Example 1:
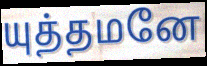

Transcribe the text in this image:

யுத்தமனே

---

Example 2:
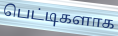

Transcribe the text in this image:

பெட்டிகளாக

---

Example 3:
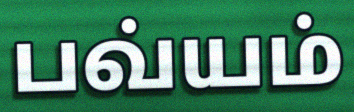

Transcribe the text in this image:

பவ்யம்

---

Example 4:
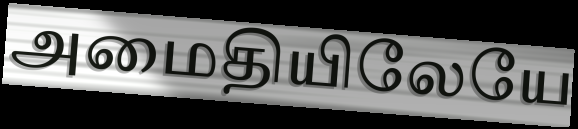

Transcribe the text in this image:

அமைதியிலேயே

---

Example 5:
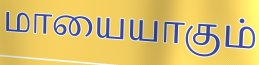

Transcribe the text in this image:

மாயையாகும்